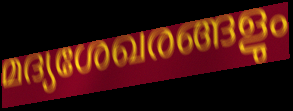
മദ്യശേഖരങ്ങളും